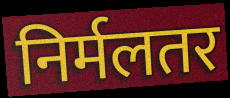
निर्मलतर